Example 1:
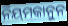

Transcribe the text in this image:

ନିୟମକାନୁନ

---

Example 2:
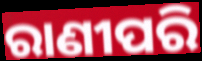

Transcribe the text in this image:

ରାଣୀପରି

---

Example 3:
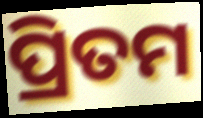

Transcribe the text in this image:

ପ୍ରିତମ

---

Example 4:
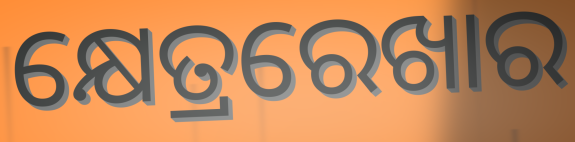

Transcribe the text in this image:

କ୍ଷେତ୍ରରେଖାର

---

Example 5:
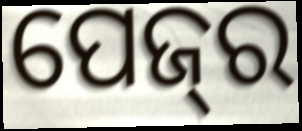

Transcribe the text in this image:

ପେଜ୍‌ର